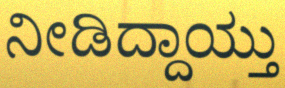
ನೀಡಿದ್ದಾಯ್ತು